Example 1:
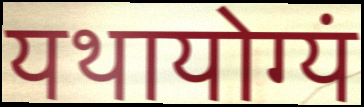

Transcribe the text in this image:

यथायोग्यं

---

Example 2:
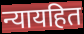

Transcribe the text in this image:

न्यायहित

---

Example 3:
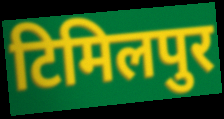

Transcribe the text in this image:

टिमिलपुर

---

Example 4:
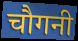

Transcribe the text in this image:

चौगनी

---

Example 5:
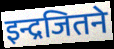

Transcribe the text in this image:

इन्द्रजितने